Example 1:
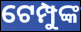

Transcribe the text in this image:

ଟେମ୍ପୁଙ୍କ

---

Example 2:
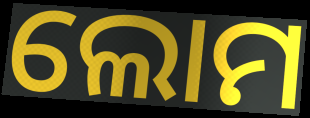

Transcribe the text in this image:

ଲୋମ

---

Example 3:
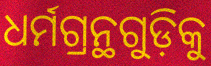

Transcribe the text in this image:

ଧର୍ମଗ୍ରନ୍ଥଗୁଡ଼ିକୁ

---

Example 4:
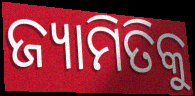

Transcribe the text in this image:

ଜ୍ୟାମିତିକୁ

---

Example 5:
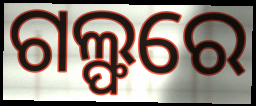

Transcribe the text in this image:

ଗଲ୍ଫରେ